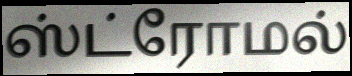
ஸ்ட்ரோமல்